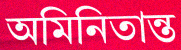
অমিনিতান্ত